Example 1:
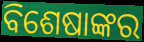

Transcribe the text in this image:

ବିଶେଷାଙ୍କର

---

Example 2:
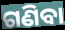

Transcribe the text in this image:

ଗଣିବା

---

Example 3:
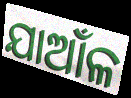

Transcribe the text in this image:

ଯାଆଁଳ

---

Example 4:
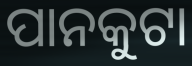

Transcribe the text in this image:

ପାନକୁଟା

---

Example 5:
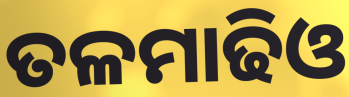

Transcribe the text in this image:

ତଳମାଢିଓ